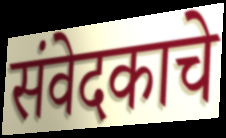
संवेदकाचे